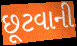
છૂટવાની